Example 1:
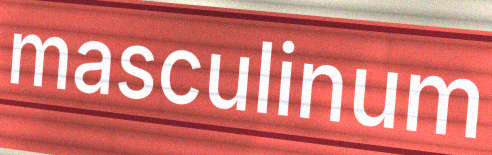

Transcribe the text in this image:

masculinum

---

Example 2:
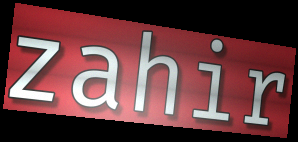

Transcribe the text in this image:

zahir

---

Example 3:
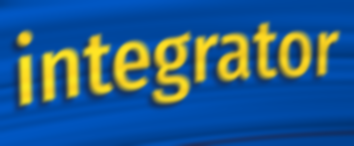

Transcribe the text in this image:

integrator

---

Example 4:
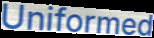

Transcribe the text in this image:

Uniformed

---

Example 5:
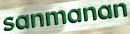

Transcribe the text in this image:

sanmanan